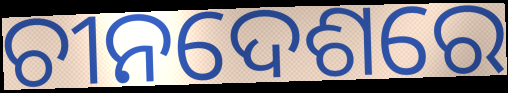
ଚୀନଦେଶରେ